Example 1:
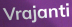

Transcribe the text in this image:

Vrajanti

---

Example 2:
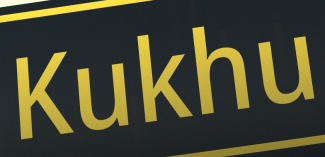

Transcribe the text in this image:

Kukhu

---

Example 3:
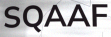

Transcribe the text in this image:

SQAAF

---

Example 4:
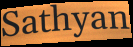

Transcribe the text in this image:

Sathyan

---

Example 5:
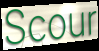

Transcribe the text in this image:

Scour